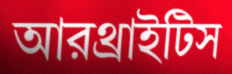
আরথ্রাইটিস